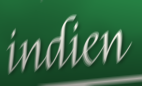
indien